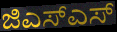
ಜಿಎಸ್ಎಸ್